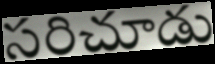
సరిచూడు